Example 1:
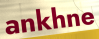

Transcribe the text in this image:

ankhne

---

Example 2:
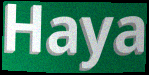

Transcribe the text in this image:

Haya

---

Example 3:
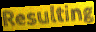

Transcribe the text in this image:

Resulting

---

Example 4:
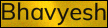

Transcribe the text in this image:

Bhavyesh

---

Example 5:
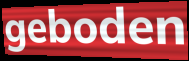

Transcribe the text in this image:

geboden